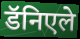
डॅनिएले